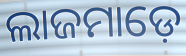
ଲାଜମାଡ଼େ